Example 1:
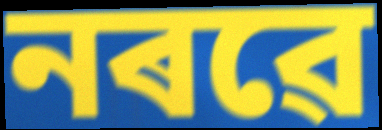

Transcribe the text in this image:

নৰৱে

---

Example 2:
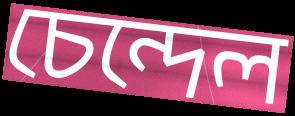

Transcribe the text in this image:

চেন্দেল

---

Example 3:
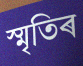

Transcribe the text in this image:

স্মৃতিৰ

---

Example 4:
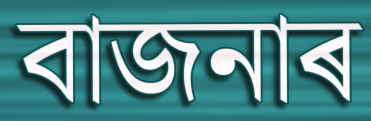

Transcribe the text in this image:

বাজনাৰ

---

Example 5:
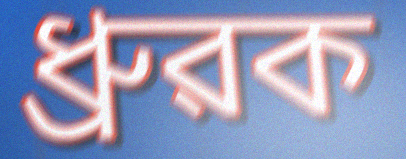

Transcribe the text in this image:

ধ্ৰুৱক